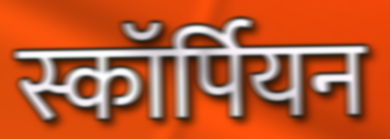
स्कॉर्पियन